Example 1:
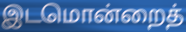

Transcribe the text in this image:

இடமொன்றைத்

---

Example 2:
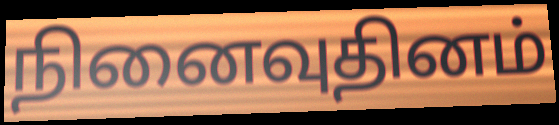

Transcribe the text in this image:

நினைவுதினம்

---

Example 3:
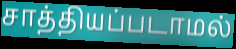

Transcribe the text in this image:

சாத்தியப்படாமல்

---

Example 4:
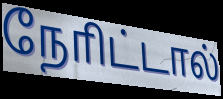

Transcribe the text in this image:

நேரிட்டால்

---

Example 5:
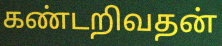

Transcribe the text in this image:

கண்டறிவதன்